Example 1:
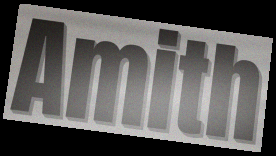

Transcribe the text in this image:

Amith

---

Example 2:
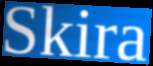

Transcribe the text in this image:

Skira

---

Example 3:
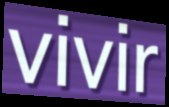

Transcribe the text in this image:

vivir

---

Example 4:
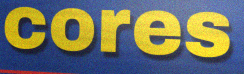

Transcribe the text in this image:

cores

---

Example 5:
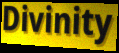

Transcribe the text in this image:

Divinity